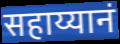
सहाय्यानं